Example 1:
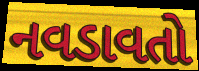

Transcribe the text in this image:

નવડાવતો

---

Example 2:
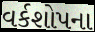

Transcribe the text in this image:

વર્કશોપના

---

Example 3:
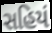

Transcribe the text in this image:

સહિયં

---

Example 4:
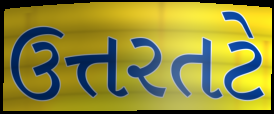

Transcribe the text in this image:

ઉત્તરતટે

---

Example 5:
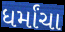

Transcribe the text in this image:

ધર્માંચા